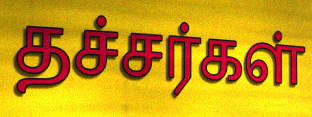
தச்சர்கள்